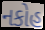
નકોહ